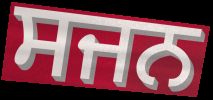
ਸਜਨ